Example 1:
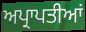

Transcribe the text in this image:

ਅਪ੍ਰਾਪਤੀਆਂ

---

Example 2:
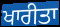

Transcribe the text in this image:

ਖਾਰੀਤਾ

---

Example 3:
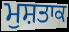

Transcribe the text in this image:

ਮੁਸ਼ਤਾਕ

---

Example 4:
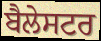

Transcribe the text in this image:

ਬੈਲੇਸਟਰ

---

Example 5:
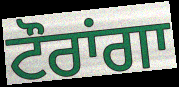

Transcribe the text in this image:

ਟੌਰਾਂਗਾ